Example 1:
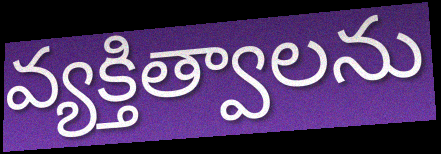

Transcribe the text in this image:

వ్యక్తిత్వాలను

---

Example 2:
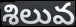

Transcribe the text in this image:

శిలువ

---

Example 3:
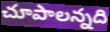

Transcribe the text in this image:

చూపాలన్నది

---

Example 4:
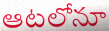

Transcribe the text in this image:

ఆటలోనూ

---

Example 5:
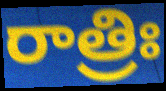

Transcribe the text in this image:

రాత్రిః